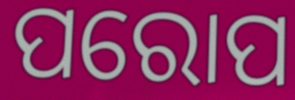
ପରୋପ